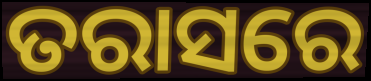
ତରାସରେ